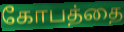
கோபத்தை